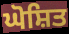
ਘੋਸ਼ਿਤ